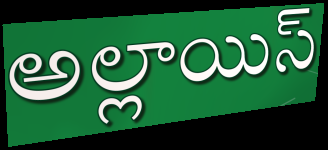
అల్లాయిస్